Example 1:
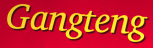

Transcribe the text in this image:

Gangteng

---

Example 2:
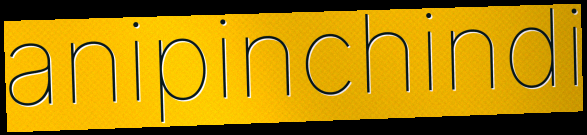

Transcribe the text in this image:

anipinchindi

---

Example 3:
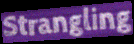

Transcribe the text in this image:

Strangling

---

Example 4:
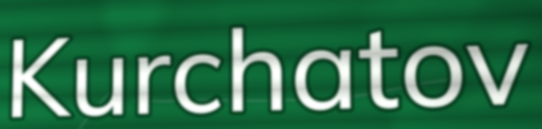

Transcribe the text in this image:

Kurchatov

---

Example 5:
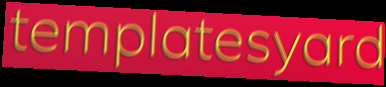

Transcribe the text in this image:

templatesyard